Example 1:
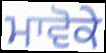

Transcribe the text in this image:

ਮਾਵੋਕੇ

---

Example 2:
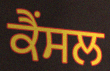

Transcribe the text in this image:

ਕੈਂਸਲ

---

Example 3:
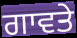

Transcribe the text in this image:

ਗਾਵਤੇ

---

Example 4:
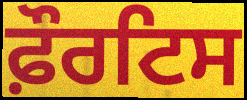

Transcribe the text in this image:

ਫ਼ੌਰਟਿਸ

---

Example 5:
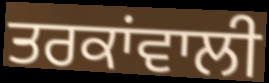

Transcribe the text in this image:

ਤਰਕਾਂਵਾਲੀ